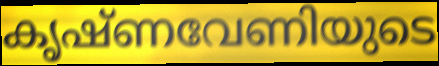
കൃഷ്ണവേണിയുടെ